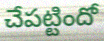
చేపట్టిందో